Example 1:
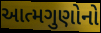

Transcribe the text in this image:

આત્મગુણોનો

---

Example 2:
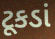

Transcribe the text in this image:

ટૂકડાં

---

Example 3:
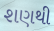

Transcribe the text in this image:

શણથી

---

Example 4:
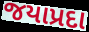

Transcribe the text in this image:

જયાપ્રદા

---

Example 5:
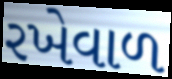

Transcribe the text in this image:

રખેવાળ